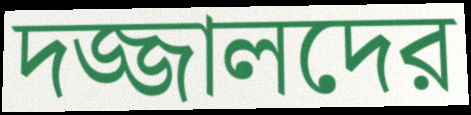
দজ্জালদের